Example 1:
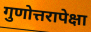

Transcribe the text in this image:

गुणोत्तरापेक्षा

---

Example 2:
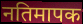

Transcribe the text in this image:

नतिमापक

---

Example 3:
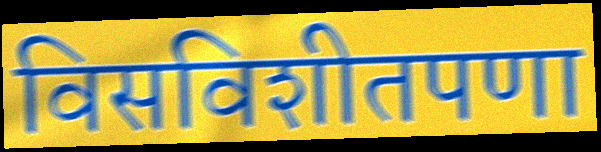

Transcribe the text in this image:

विसविशीतपणा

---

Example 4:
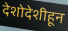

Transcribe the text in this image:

देशोदेशीहून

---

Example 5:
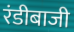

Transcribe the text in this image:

रंडीबाजी